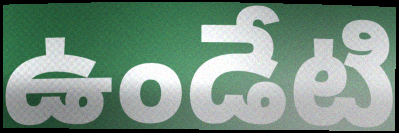
ఉండేటి